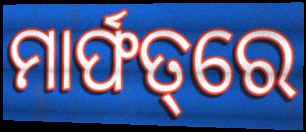
ମାର୍ଫତ୍‌ରେ